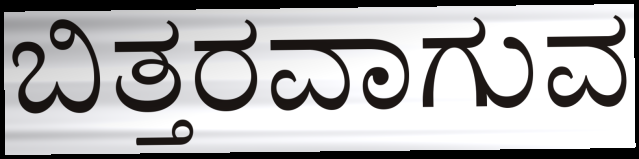
ಬಿತ್ತರವಾಗುವ